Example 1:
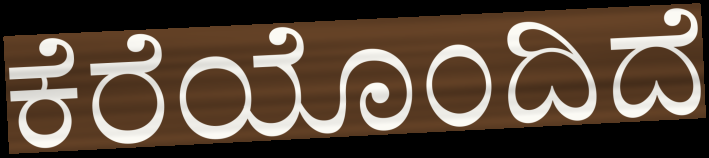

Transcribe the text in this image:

ಕೆರೆಯೊಂದಿದೆ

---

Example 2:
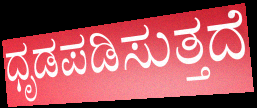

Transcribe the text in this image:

ಧೃಡಪಡಿಸುತ್ತದೆ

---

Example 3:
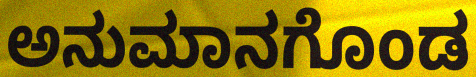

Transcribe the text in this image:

ಅನುಮಾನಗೊಂಡ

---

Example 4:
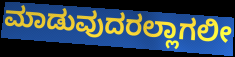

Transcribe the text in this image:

ಮಾಡುವುದರಲ್ಲಾಗಲೀ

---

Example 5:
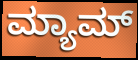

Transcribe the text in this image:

ಮ್ಯಾಮ್